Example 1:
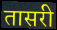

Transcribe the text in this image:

तासरी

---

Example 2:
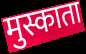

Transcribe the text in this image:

मुस्काता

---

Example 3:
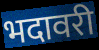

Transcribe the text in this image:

भदावरी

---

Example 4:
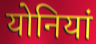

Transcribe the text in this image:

योनियां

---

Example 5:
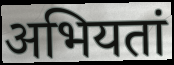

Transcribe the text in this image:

अभियतां